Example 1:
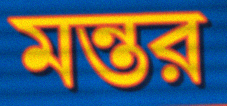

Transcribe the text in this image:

মন্তর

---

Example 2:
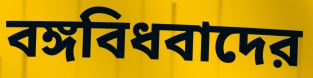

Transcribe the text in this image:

বঙ্গবিধবাদের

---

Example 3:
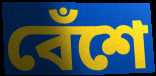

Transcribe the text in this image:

বেঁশে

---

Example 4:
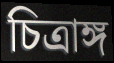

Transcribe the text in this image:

চিত্রাঙ্গ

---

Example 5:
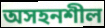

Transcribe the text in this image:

অসহনশীল